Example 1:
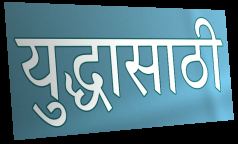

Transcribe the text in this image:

युद्धासाठी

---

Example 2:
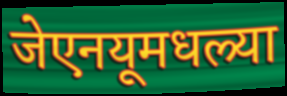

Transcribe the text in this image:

जेएनयूमधल्या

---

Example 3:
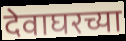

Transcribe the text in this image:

देवाघरच्या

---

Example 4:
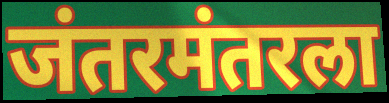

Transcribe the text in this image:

जंतरमंतरला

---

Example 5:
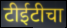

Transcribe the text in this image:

टीईटीचा